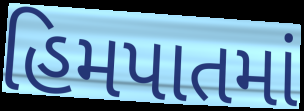
હિમપાતમાં